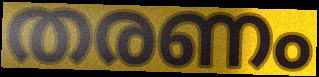
തരണം